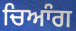
ਚਿਆੰਗ